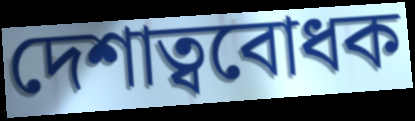
দেশাত্ববোধক